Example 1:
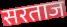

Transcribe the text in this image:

सरताज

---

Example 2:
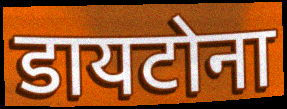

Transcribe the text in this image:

डायटोना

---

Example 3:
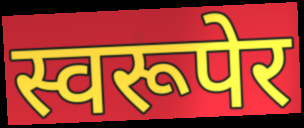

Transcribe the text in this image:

स्वरूपेर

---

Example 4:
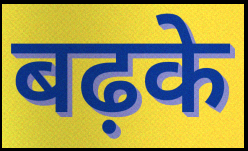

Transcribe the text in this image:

बढ़के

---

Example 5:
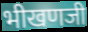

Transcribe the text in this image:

भीखणजी